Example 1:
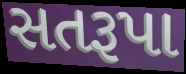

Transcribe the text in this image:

સતરૂપા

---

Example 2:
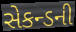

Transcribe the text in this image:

સેકન્ડની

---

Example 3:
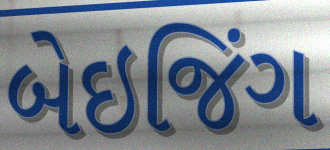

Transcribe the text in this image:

બેઇજિંગ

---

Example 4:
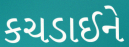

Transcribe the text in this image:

કચડાઈને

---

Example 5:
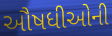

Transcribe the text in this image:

ઔષધીઓની